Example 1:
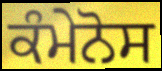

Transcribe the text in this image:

ਕੰਮੇਨੋਸ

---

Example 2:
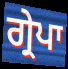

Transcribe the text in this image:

ਗ੍ਰੇਪਾ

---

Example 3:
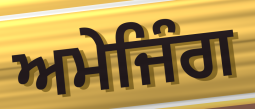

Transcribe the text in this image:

ਅਮੇਜਿੰਗ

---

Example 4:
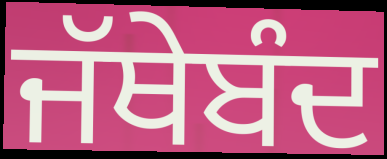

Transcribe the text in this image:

ਜੱਥੇਬੰਦ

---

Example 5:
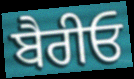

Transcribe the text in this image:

ਬੈਰੀਓ